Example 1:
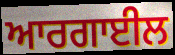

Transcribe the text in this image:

ਆਰਗਾਈਲ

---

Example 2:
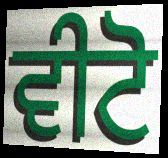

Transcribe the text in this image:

ਵੀਟੋ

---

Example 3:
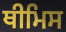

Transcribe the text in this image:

ਥੀਮਿਸ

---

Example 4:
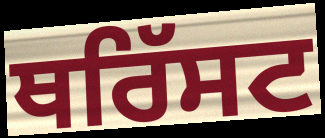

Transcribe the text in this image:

ਥਰਿੱਸਟ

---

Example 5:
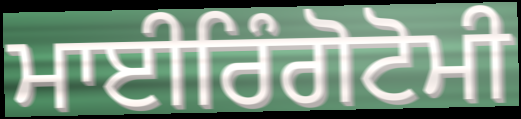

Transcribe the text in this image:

ਮਾਈਰਿੰਗੋਟੋਮੀ